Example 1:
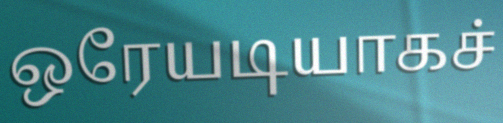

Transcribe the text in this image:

ஒரேயடியாகச்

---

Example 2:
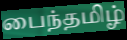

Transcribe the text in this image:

பைந்தமிழ்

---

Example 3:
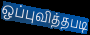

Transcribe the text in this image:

ஒப்புவித்தபடி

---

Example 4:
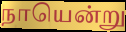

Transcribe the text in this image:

நாயென்று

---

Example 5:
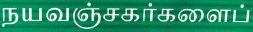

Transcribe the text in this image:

நயவஞ்சகர்களைப்